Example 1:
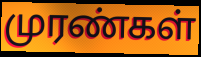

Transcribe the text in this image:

முரண்கள்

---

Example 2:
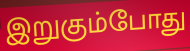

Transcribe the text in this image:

இறுகும்போது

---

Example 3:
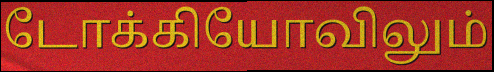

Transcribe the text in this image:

டோக்கியோவிலும்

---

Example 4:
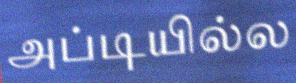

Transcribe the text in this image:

அப்டியில்ல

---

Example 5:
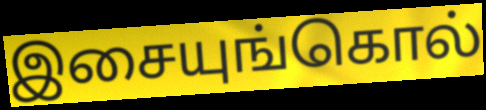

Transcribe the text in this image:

இசையுங்கொல்